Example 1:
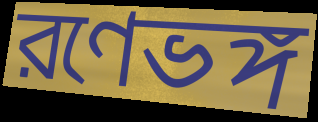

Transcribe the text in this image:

রণেভঙ্গ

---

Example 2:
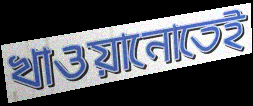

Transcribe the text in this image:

খাওয়ানোতেই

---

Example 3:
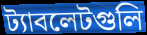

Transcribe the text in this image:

ট্যাবলেটগুলি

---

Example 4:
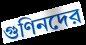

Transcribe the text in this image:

গুণিনদের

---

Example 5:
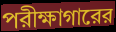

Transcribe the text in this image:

পরীক্ষাগারের